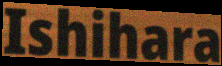
Ishihara